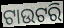
ଟାଉଟରି